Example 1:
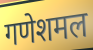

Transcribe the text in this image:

गणेशमल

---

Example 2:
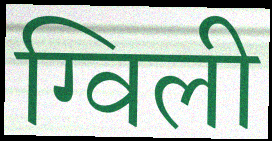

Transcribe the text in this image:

ग्विली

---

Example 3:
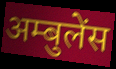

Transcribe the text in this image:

अम्बुलेंस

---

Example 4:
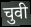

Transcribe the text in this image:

चुवी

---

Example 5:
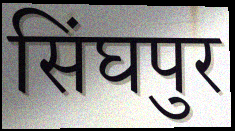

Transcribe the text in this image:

सिंघपुर